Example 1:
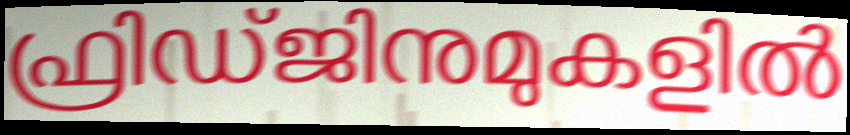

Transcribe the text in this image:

ഫ്രിഡ്ജിനുമുകളിൽ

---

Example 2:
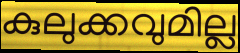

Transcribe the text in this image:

കുലുക്കവുമില്ല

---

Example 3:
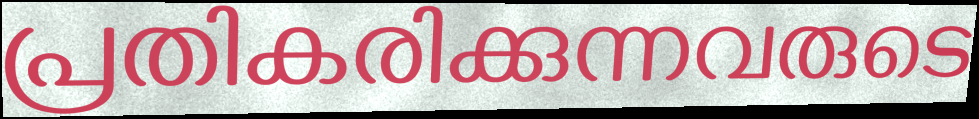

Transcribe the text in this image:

പ്രതികരിക്കുന്നവരുടെ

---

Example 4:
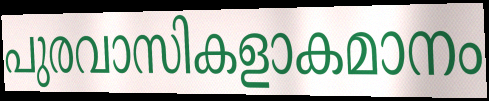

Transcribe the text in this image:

പുരവാസികളാകമാനം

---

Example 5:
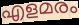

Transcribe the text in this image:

എളമരം